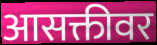
आसक्तीवर